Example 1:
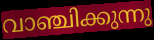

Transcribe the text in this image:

വാഞ്ചിക്കുന്നു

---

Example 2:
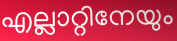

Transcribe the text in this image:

എല്ലാറ്റിനേയും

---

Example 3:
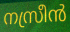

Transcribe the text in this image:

നസ്രീൻ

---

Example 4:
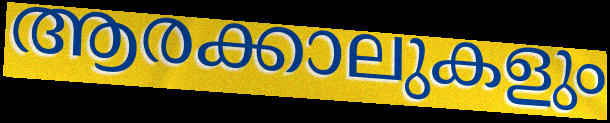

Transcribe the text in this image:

ആരക്കാലുകളും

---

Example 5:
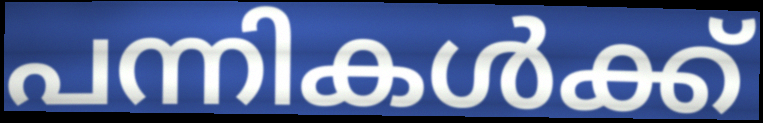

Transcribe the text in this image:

പന്നികൾക്ക്